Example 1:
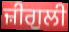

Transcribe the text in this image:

ਜ਼ੀਗੁਲੀ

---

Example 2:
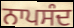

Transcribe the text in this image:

ਨਾਪਸੰਦ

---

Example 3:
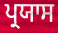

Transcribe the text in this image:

ਪ੍ਰਯਾਸ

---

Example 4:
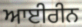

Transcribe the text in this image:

ਆਈਰੀਨ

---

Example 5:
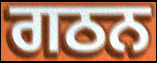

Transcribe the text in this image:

ਗਠਨ